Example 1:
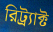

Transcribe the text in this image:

রিট্র্যাক্ট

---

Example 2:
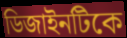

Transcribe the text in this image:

ডিজাইনটিকে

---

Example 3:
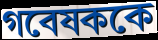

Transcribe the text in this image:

গবেষককে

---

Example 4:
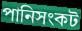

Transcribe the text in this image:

পানিসংকট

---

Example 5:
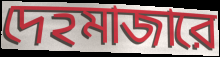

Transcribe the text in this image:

দেহমাজারে